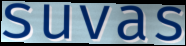
suvas